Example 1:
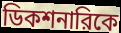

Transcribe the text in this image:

ডিকশনারিকে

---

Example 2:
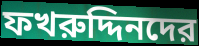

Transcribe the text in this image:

ফখরুদ্দিনদের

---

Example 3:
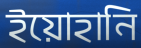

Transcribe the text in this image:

ইয়োহানি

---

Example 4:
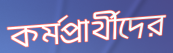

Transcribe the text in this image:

কর্মপ্রার্থীদের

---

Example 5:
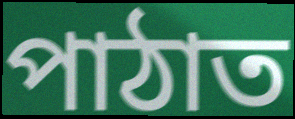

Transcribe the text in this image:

পাঠাত